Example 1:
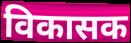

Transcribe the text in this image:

विकासक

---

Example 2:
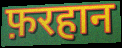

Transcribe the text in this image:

फ़रहान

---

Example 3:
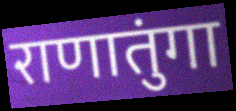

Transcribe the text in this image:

राणातुंगा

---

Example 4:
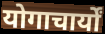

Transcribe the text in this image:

योगाचार्यों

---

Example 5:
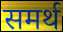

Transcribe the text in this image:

समर्थ